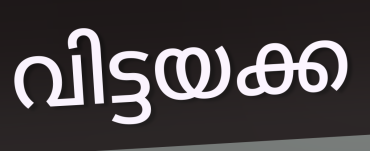
വിട്ടയക്ക